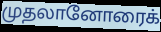
முதலானோரைக்